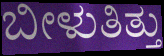
ಬೀಳುತಿತ್ತು